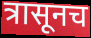
त्रासूनच